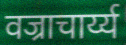
वज्राचार्य्य